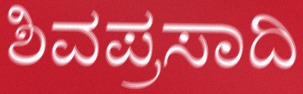
ಶಿವಪ್ರಸಾದಿ